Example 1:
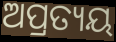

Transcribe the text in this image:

ଅପ୍ରତ୍ୟୟ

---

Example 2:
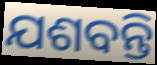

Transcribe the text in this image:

ଯଶବନ୍ତି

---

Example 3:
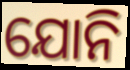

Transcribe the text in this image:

ଯୋନି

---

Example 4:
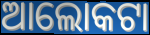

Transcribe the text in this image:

ଆଲୋକଟା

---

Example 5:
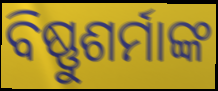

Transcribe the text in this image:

ବିଷ୍ଣୁଶର୍ମାଙ୍କ